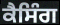
ਕੈਸਿੰਗ